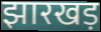
झारखड़